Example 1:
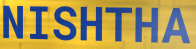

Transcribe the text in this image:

NISHTHA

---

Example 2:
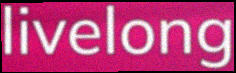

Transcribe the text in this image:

livelong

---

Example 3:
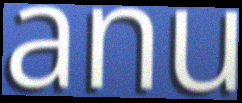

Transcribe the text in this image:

anu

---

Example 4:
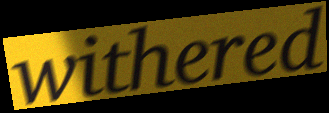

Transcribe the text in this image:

withered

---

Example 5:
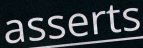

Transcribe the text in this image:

asserts